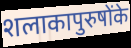
शलाकापुरुषोंके